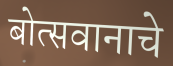
बोत्सवानाचे